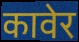
कावेर